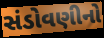
સંડોવણીનો